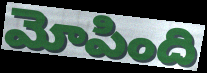
మోపింది